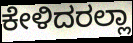
ಕೇಳಿದರಲ್ಲಾ